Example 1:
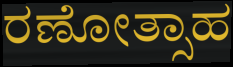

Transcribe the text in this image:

ರಣೋತ್ಸಾಹ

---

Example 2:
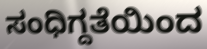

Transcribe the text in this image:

ಸಂಧಿಗ್ದತೆಯಿಂದ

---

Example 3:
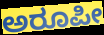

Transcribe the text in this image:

ಅರೂಪೀ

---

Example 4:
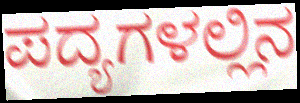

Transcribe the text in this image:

ಪದ್ಯಗಳಲ್ಲಿನ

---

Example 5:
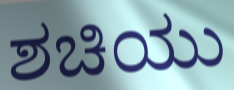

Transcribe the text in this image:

ಶಚಿಯು